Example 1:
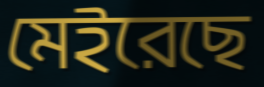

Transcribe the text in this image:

মেইরেছে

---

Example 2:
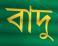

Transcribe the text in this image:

বাদু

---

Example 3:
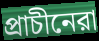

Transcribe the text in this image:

প্রাচীনেরা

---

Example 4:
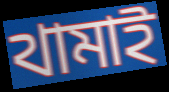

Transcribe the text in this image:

থামাই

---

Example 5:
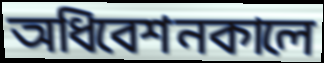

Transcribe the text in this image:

অধিবেশনকালে